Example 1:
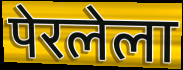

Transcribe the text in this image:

पेरलेला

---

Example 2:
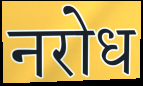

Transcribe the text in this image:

नरोध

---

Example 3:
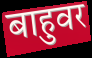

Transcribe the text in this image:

बाहुवर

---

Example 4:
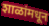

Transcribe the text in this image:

शाळांमधून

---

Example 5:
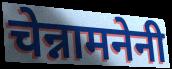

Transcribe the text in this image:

चेन्नामनेनी